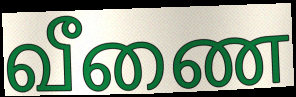
வீணை